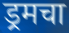
ड्रमचा